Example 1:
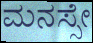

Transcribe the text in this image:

ಮನಸ್ಸೇ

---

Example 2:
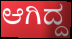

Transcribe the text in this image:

ಆಗಿದ್ದ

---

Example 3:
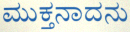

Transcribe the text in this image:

ಮುಕ್ತನಾದನು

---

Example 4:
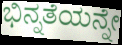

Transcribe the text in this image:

ಭಿನ್ನತೆಯನ್ನೇ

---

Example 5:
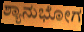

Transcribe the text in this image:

ಶ್ಯಾನುಭೋಗ